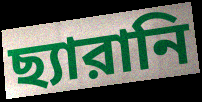
ছ্যারানি